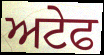
ਅਟੇਫ